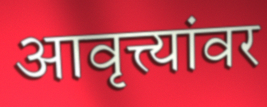
आवृत्त्यांवर